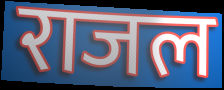
राजल